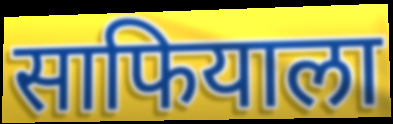
साफियाला